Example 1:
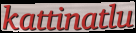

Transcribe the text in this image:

kattinatlu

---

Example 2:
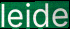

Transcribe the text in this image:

leide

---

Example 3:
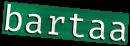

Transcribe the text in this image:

bartaa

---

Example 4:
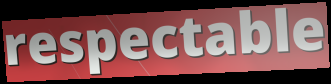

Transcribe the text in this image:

respectable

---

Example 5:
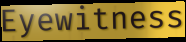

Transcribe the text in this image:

Eyewitness